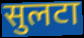
सुलटा